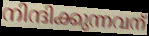
നിന്ദിക്കുന്നവന്